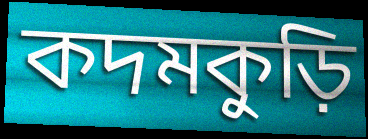
কদমকুড়ি